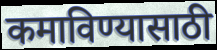
कमाविण्यासाठी